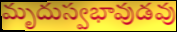
మృదుస్వభావుడవు